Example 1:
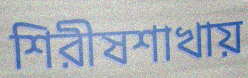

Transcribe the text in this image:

শিরীষশাখায়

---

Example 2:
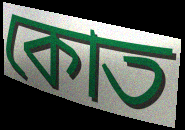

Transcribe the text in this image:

কোত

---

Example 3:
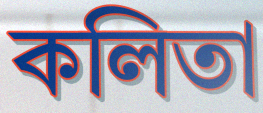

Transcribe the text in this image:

কলিতা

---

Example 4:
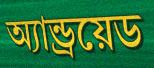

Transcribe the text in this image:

অ্যান্ড্রয়েড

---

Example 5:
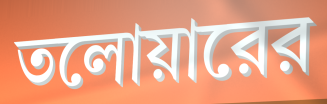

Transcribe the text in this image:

তলোয়ারের